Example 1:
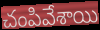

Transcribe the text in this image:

చంపివేశాయి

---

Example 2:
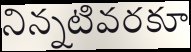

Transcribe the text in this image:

నిన్నటివరకూ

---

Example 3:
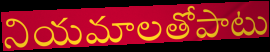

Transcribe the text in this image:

నియమాలతోపాటు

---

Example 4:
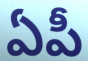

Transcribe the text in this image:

ఏపీ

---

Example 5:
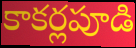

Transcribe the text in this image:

కాకర్లపూడి